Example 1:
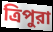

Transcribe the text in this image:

ত্রিপুরা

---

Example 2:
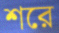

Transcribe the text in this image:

শরে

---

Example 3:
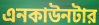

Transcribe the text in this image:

এনকাউনটার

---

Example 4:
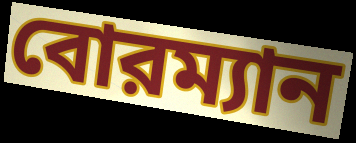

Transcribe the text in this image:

বোরম্যান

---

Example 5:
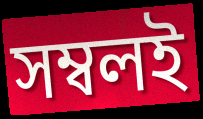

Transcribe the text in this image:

সম্বলই